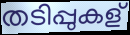
തടിപ്പുകള്